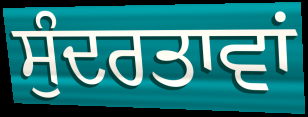
ਸੁੰਦਰਤਾਵਾਂ